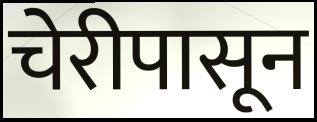
चेरीपासून